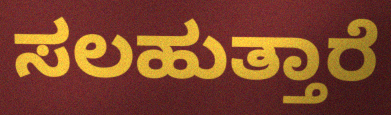
ಸಲಹುತ್ತಾರೆ